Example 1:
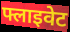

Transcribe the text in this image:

फ्लाइवेट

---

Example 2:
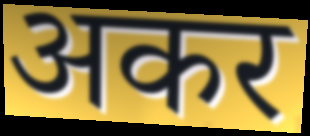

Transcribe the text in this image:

अकर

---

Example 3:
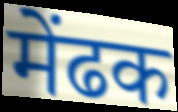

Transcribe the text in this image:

मेंढक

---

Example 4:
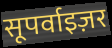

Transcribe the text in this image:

सूपर्वाइज़र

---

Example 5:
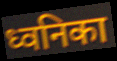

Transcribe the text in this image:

ध्वनिका